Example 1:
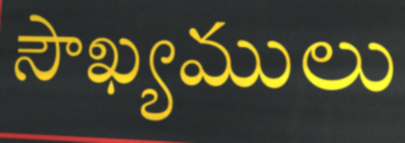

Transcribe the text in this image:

సౌఖ్యములు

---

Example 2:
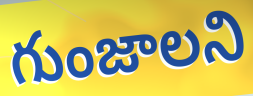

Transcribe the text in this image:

గుంజాలని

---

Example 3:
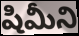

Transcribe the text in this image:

షిమీని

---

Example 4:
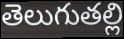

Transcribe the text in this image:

తెలుగుతల్లి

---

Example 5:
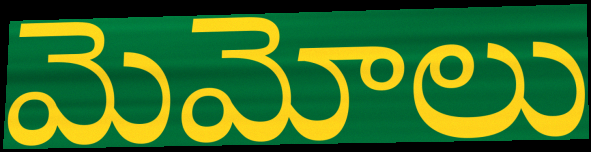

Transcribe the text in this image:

మెమోలు